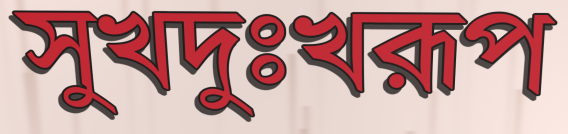
সুখদুঃখরূপ